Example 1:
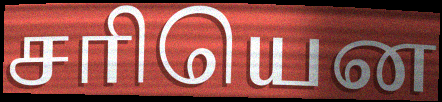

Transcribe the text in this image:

சரியென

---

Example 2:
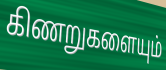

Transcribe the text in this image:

கிணறுகளையும்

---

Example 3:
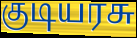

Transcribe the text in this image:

குடியரசு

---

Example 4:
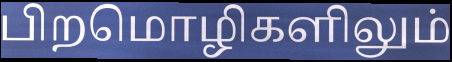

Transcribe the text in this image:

பிறமொழிகளிலும்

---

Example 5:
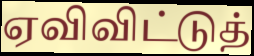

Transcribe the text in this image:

ஏவிவிட்டுத்